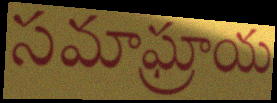
సమాఘ్రాయ